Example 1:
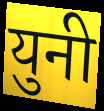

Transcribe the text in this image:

युनी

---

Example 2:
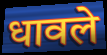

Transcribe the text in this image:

धावले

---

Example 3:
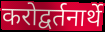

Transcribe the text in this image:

करोद्वर्तनार्थे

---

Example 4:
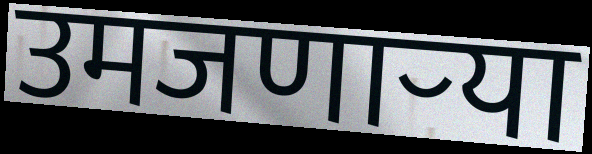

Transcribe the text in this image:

उमजणाऱ्या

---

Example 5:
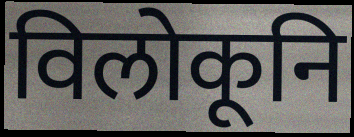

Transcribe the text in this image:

विलोकूनि